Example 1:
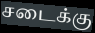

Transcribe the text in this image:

சடைக்கு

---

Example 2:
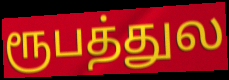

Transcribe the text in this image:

ரூபத்துல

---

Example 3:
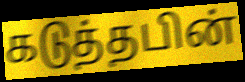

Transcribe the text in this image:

கடுத்தபின்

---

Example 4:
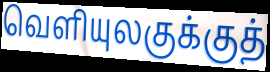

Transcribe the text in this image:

வெளியுலகுக்குத்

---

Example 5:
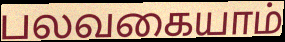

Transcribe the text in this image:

பலவகையாம்